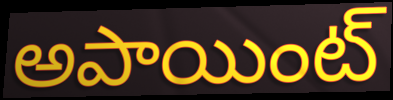
అపాయింట్